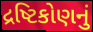
દ્રષ્ટિકોણનું